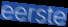
eerste